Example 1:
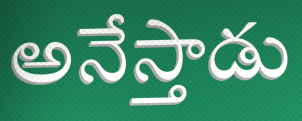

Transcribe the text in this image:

అనేస్తాడు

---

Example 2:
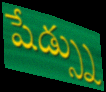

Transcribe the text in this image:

షేడ్స్ను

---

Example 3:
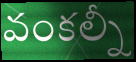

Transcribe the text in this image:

వంకల్నీ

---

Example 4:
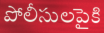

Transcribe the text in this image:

పోలీసులపైకి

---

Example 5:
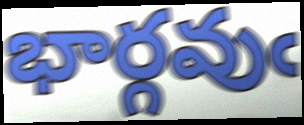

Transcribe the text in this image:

భార్గవుఁ